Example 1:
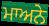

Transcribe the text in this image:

ਮਾਅਨੇ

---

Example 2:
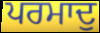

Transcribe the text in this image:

ਪਰਮਾਦੁ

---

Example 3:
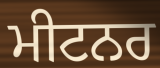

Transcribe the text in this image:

ਮੀਟਨਰ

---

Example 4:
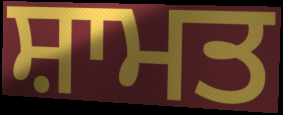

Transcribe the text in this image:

ਸ਼ਾਮਤ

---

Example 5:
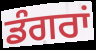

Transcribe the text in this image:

ਡੰਗਰਾਂ